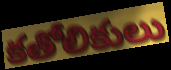
కతోలికులు